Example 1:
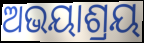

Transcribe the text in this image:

ଅଭୟାଶ୍ରୟ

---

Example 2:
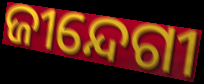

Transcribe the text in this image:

ଜୀନ୍ଦେଗୀ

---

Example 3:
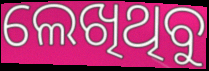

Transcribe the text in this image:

ଲେଖିଥିବୁ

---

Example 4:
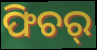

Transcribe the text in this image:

ଫିଚର୍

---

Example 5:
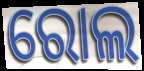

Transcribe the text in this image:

ରୋଲ